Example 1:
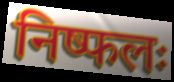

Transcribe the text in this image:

निष्फलः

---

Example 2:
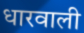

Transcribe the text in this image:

धारवाली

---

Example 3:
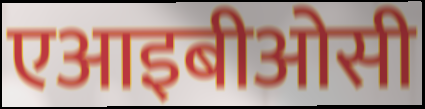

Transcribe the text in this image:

एआइबीओसी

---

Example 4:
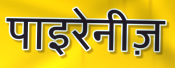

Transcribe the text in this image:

पाइरेनीज़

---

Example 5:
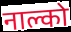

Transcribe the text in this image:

नाल्को